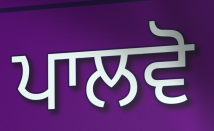
ਪਾਲਵੋ